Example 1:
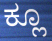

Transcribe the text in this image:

ಕ್ಲೂ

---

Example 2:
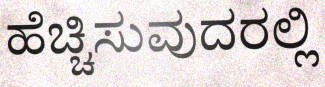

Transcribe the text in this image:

ಹೆಚ್ಚಿಸುವುದರಲ್ಲಿ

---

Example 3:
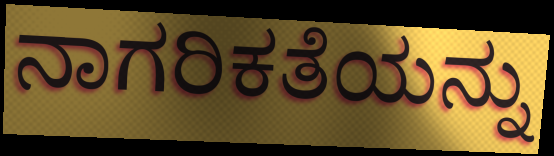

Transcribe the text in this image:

ನಾಗರಿಕತೆಯನ್ನು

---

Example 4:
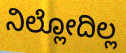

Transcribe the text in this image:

ನಿಲ್ಲೋದಿಲ್ಲ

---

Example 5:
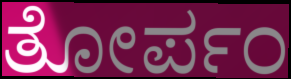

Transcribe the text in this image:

ತೋರ್ಪಂ